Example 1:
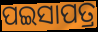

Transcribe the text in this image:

ପଇସାପତ୍ର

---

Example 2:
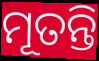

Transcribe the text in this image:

ମୂତନ୍ତି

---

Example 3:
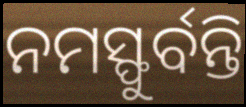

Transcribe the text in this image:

ନମସ୍ଫୁର୍ବନ୍ତି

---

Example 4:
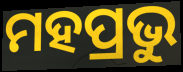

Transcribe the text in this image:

ମହପ୍ରଭୁ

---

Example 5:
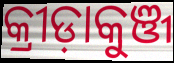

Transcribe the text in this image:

କ୍ରୀଡ଼ାକୁଞ୍ଜ